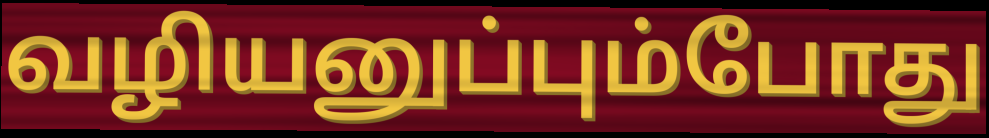
வழியனுப்பும்போது